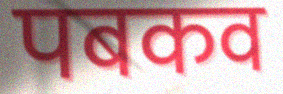
पबकव